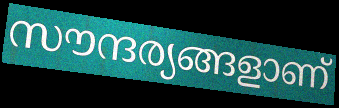
സൗന്ദര്യങ്ങളാണ്